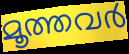
മൂത്തവർ